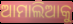
ଆମାଲିଆକୁ